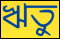
ঋতু